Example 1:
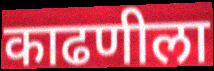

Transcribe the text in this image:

काढणीला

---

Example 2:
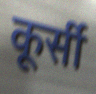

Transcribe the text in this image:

कूर्सी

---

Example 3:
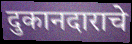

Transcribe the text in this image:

दुकानदाराचे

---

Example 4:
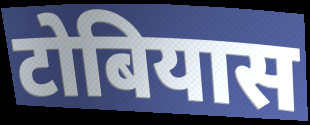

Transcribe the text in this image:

टोबियास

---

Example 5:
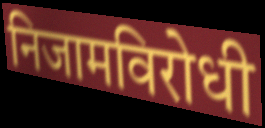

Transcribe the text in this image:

निजामविरोधी